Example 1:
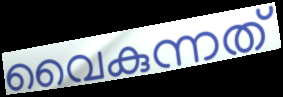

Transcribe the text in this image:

വൈകുന്നത്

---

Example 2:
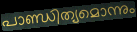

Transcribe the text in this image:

പാണ്ഡിത്യമൊന്നും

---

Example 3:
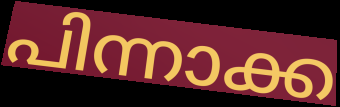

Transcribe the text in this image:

പിന്നാക്ക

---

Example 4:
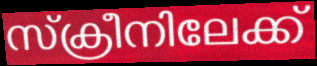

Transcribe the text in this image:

സ്‌ക്രീനിലേക്ക്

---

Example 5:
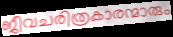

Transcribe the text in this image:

ജീവചരിത്രകാരന്മാരും